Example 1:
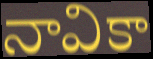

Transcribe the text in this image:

నావికా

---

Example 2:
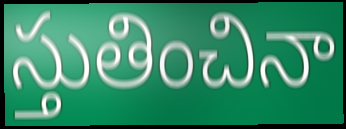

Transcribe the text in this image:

స్తుతించినా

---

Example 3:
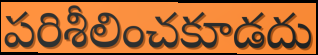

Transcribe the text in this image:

పరిశీలించకూడదు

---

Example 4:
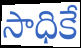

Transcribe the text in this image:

సాధికే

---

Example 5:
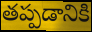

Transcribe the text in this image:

తప్పడానికి